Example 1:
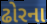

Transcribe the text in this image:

ઢોરના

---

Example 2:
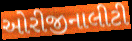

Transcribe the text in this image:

ઓરીજીનાલીટી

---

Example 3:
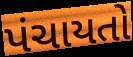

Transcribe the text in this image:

પંચાયતો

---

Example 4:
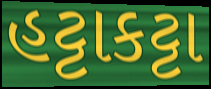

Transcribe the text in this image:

હટ્ટાકટ્ટા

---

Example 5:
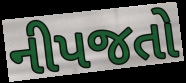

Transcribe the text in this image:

નીપજતો